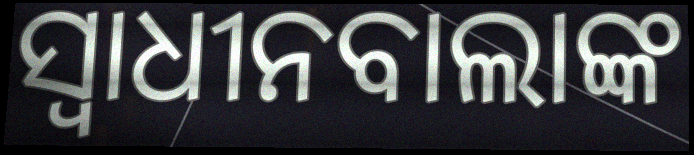
ସ୍ୱାଧୀନବାଲାଙ୍କ